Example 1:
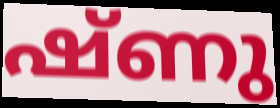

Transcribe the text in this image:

ഷ്ണു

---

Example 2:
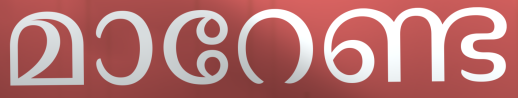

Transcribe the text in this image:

മാറേണ്ട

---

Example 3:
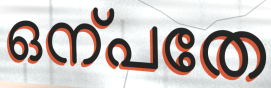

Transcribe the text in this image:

ഒന്പതേ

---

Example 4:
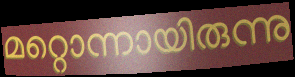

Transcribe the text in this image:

മറ്റൊന്നായിരുന്നു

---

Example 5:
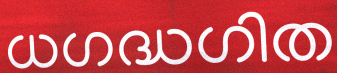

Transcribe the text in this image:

ധഗദ്ധഗിത